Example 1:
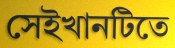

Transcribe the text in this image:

সেইখানটিতে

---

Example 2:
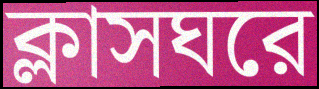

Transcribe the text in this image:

ক্লাসঘরে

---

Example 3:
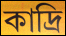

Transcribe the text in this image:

কাদ্রি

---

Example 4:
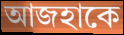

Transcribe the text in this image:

আজহাকে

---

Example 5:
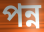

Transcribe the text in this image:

পন্ন